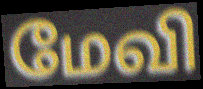
மேவி